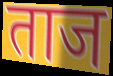
ताज